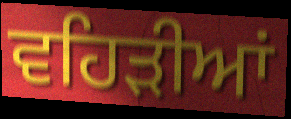
ਵਹਿੜੀਆਂ